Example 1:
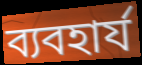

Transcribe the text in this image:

ব্যবহার্য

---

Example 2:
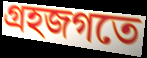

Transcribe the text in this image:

গ্রহজগতে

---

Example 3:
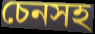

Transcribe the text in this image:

চেনসহ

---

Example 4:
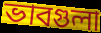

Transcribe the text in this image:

ভাবগুলা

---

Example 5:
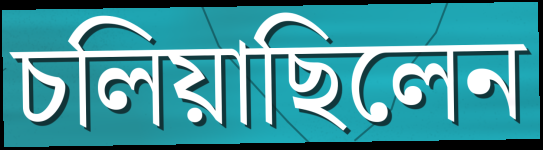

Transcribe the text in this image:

চলিয়াছিলেন